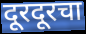
दूरदूरचा